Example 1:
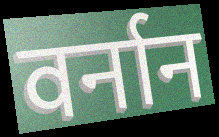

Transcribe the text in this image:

वर्नान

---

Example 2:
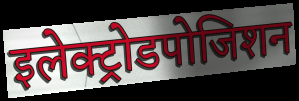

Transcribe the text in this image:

इलेक्ट्रोडपोजिशन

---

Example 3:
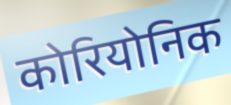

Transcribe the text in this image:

कोरियोनिक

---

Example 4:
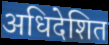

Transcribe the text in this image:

अधिदेशित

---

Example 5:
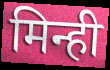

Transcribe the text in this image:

मिन्ही